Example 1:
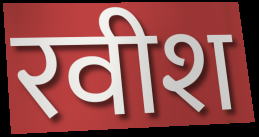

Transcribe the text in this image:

रवीश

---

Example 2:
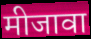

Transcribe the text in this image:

मीजावा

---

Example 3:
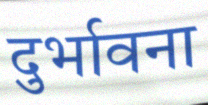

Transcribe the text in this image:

दुर्भावना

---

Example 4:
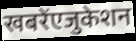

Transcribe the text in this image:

खबरेंएजुकेशन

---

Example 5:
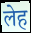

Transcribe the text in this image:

लेह